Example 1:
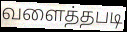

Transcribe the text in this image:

வளைத்தபடி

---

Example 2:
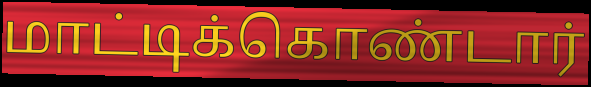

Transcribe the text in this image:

மாட்டிக்கொண்டார்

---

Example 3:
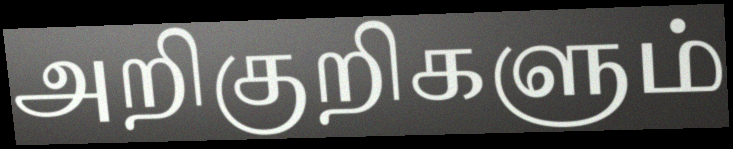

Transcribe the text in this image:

அறிகுறிகளும்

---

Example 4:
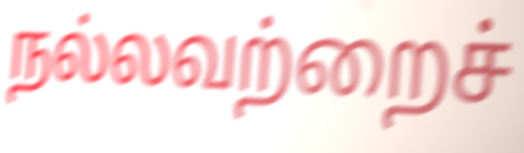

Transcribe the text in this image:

நல்லவற்றைச்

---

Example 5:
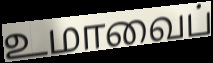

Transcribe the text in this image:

உமாவைப்